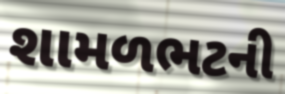
શામળભટની